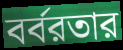
বর্বরতার